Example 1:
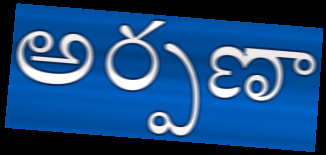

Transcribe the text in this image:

అర్పణా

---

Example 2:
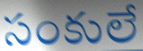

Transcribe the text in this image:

సంకులే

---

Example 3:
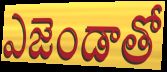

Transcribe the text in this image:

ఎజెండాతో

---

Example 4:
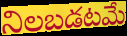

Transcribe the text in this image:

నిలబడటమే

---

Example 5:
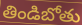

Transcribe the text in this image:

తిండిబోతు